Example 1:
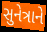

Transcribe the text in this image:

સુનેત્રાને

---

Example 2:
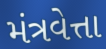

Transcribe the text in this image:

મંત્રવેત્તા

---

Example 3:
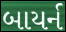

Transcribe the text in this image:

બાયર્ન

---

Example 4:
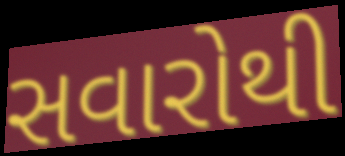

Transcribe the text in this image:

સવારોથી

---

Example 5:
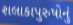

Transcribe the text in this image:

શલાકાપુરુષોનું